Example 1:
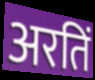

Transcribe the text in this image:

अरतिं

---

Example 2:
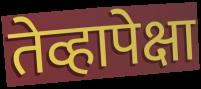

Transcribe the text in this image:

तेव्हापेक्षा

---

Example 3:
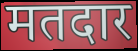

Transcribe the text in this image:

मतदार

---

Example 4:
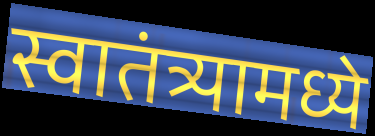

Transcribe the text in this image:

स्वातंत्र्यामध्ये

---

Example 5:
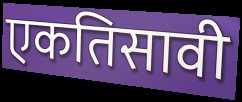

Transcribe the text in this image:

एकतिसावी